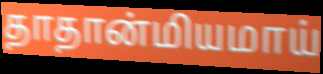
தாதான்மியமாய்